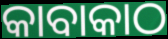
କାବାକାଠ